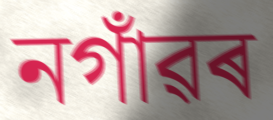
নগাঁৱৰ